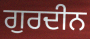
ਗੁਰਦੀਨ